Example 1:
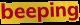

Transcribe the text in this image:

beeping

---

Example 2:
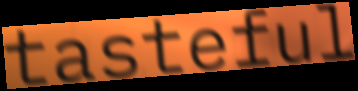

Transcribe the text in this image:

tasteful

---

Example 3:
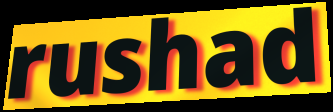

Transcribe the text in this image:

rushad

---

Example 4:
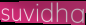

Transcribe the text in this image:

suvidha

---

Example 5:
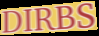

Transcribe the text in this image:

DIRBS